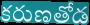
కరుణతోడ